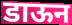
डाऊन